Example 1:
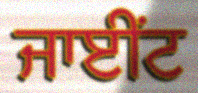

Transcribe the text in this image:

ਜਾਈਂਟ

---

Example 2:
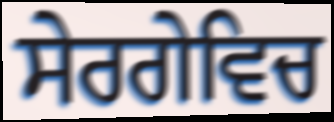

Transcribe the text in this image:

ਸੇਰਗੇਵਿਚ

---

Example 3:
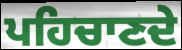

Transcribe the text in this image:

ਪਹਿਚਾਣਦੇ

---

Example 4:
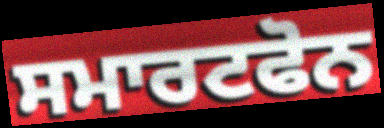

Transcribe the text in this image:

ਸਮਾਰਟਫੋਨ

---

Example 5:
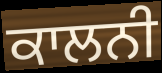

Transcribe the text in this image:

ਕਾਲਨੀ